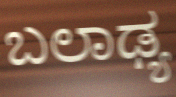
ಬಲಾಢ್ಯ